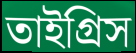
তাইগ্রিস